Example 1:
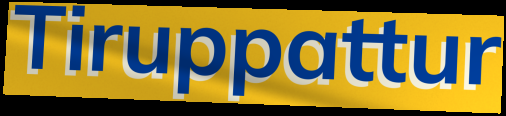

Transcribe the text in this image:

Tiruppattur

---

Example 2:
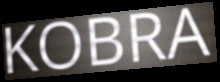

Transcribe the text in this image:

KOBRA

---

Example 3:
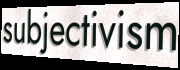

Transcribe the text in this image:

subjectivism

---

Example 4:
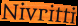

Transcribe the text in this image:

Nivritti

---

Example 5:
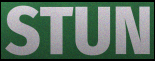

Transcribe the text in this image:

STUN